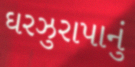
ઘરઝુરાપાનું